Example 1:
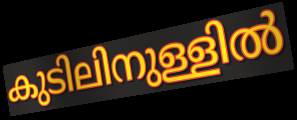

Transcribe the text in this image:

കുടിലിനുള്ളിൽ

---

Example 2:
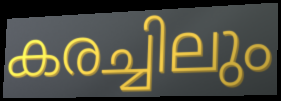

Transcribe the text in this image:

കരച്ചിലും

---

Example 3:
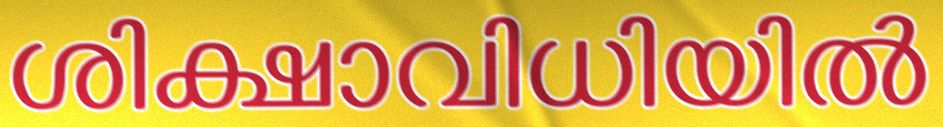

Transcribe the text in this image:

ശിക്ഷാവിധിയിൽ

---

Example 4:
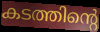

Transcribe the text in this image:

കടത്തിന്റെ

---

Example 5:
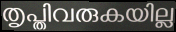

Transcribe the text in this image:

തൃപ്തിവരുകയില്ല